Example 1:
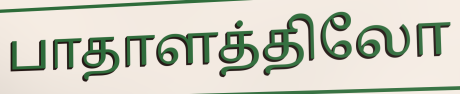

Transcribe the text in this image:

பாதாளத்திலோ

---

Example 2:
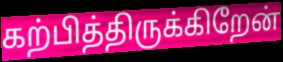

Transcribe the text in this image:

கற்பித்திருக்கிறேன்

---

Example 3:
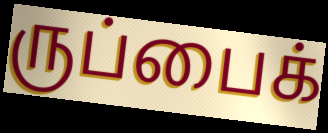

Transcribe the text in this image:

ருப்பைக்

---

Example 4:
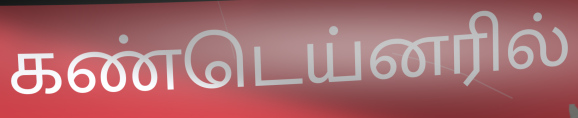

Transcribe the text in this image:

கண்டெய்னரில்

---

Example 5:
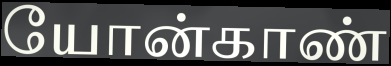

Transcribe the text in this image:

யோன்காண்